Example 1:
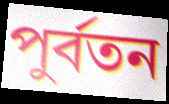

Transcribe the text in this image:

পুর্বতন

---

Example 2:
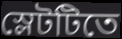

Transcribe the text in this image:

স্লেটটিতে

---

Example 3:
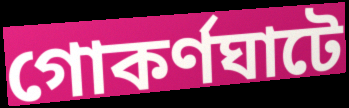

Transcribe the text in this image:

গোকর্ণঘাটে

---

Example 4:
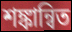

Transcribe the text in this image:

শঙ্কান্বিত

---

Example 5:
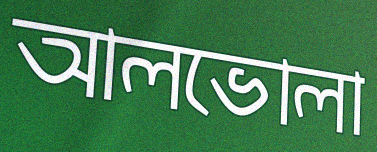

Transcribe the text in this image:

আলভোলা